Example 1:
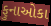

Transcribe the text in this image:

ફુનાઓકા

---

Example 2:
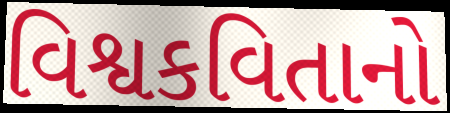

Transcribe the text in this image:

વિશ્વકવિતાનો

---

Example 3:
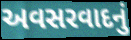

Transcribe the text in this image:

અવસરવાદનું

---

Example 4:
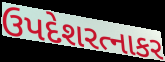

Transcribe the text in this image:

ઉપદેશરત્નાકર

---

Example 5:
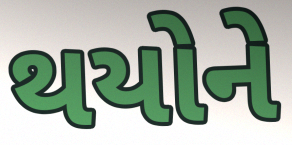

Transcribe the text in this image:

થયોને